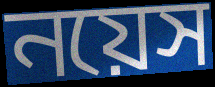
নয়েস